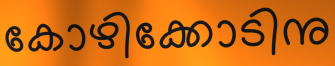
കോഴിക്കോടിനു